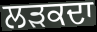
ਲੜਕਦਾ